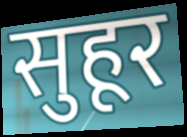
सुहूर